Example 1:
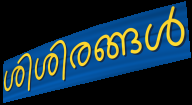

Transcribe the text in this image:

ശിശിരങ്ങൾ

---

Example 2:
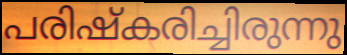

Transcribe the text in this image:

പരിഷ്കരിച്ചിരുന്നു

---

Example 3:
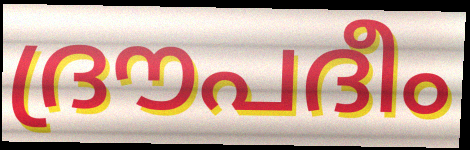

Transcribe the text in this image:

ദ്രൗപദീം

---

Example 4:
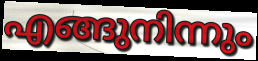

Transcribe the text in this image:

എങ്ങുനിന്നും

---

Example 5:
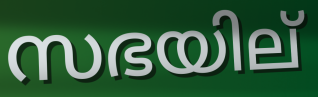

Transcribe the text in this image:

സഭയില്